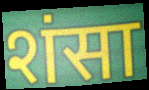
शंसा